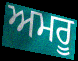
ਅਮਰੂ